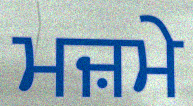
ਮਜ਼ਮੇ